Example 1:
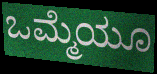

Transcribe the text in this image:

ಒಮ್ಮೆಯೂ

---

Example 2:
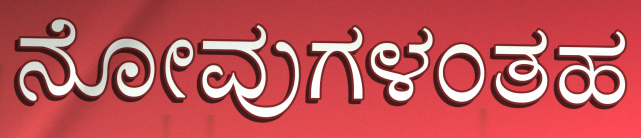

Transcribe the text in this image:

ನೋವುಗಳಂತಹ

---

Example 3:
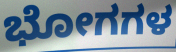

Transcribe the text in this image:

ಭೋಗಗಳ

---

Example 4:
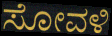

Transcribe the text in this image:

ಸೋವಳಿ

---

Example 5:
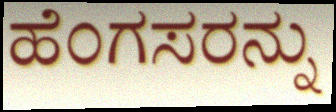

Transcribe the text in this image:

ಹೆಂಗಸರನ್ನು